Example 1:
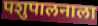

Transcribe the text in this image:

पशुपालनाला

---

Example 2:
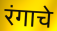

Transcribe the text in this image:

रंगाचे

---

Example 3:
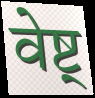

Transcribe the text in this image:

वेष्ट्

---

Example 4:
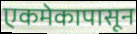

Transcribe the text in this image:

एकमेकापासून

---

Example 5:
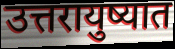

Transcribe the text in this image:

उत्तरायुष्यात